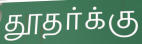
தூதர்க்கு